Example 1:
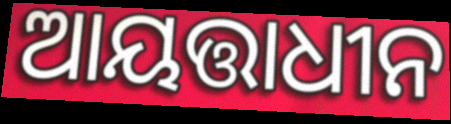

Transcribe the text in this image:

ଆୟତ୍ତାଧୀନ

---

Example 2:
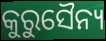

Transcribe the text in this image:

କୁରୁସୈନ୍ୟ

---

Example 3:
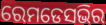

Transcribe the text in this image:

ରେମଡେସଭିର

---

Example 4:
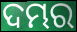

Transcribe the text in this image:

ଦମ୍ଭର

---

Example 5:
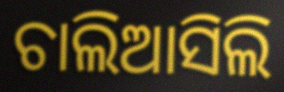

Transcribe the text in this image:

ଚାଲିଆସିଲି